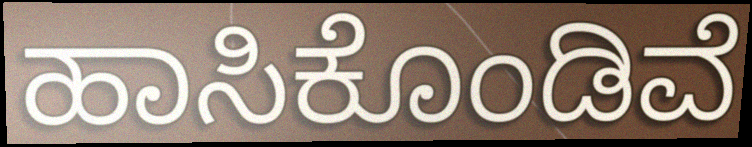
ಹಾಸಿಕೊಂಡಿವೆ